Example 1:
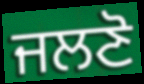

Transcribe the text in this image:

ਜਲਣੋ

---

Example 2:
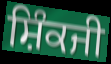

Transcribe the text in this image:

ਸ਼ਿੰਕਜੀ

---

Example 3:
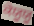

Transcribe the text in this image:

ਕੇਯੂਯੂ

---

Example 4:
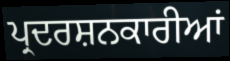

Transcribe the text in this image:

ਪ੍ਰਦਰਸ਼ਨਕਾਰੀਆਂ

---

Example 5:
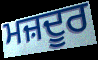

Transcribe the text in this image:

ਮਜ਼ਦੂਰ